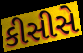
કીસીસે